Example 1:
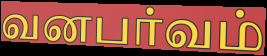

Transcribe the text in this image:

வனபர்வம்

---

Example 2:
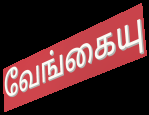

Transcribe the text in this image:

வேங்கையு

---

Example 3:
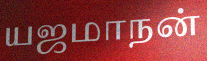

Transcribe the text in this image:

யஜமாநன்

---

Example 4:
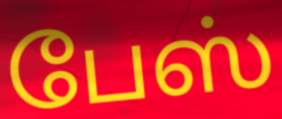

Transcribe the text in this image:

பேஸ்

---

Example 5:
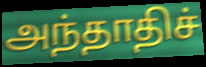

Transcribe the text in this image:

அந்தாதிச்